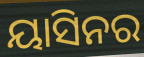
ୟାସିନର